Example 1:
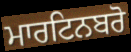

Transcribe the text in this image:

ਮਾਰਟਿਨਬਰੋ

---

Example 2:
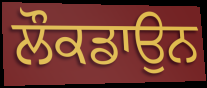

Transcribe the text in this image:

ਲੌਕਡਾਉਨ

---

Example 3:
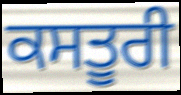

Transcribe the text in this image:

ਕਸਤੂਰੀ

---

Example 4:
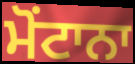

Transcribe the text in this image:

ਮੋਂਟਾਨਾ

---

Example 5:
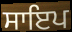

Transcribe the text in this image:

ਸਾਇਪ